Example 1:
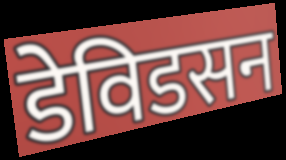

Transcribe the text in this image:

डेविडसन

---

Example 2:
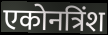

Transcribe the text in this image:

एकोनत्रिंश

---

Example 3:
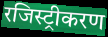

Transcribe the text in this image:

रजिस्ट्रीकरण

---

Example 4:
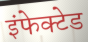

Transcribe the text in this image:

इंफेक्टेड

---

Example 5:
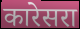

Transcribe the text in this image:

कारेसरा